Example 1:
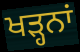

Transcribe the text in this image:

ਖੜ੍ਹਨਾਂ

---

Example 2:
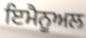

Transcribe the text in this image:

ਇਮੈਨੂਅਲ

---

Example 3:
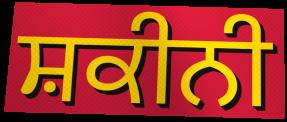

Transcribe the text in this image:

ਸ਼ਕੀਨੀ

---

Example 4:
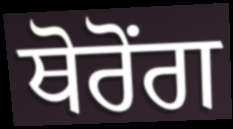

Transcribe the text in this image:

ਥੋਰੋਂਗ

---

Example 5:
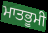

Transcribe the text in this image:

ਮਾਤਭੂਮੀ